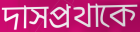
দাসপ্রথাকে